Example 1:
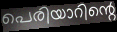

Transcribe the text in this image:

പെരിയാറിന്റെ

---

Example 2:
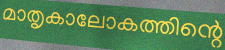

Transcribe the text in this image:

മാതൃകാലോകത്തിന്റെ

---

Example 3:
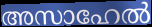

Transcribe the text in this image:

അസാഹേൽ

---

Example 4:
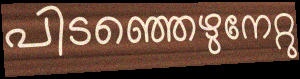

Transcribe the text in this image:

പിടഞ്ഞെഴുനേറ്റു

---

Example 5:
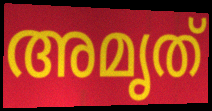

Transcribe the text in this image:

അമൃത്